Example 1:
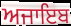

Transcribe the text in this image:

ਅਜਾਇਬ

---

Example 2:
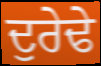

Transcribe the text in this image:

ਦੁਰੇਢੇ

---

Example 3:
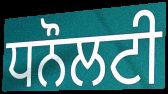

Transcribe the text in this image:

ਧਨੌਲਟੀ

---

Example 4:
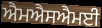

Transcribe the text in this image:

ਐਮਐਸਐਮਈ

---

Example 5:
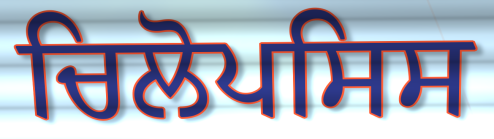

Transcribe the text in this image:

ਚਿਲੋਪਸਿਸ